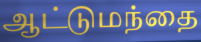
ஆட்டுமந்தை